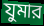
যুমার